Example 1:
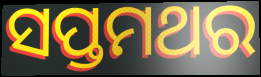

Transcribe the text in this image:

ସପ୍ତମଥର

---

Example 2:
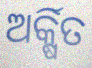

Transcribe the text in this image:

ଅର୍କ୍ଷିତ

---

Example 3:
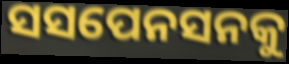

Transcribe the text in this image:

ସସପେନସନକୁ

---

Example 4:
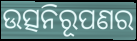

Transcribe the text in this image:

ଉତ୍ସନିରୂପଣର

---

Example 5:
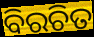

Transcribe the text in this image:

ବିରଚିତ